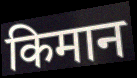
किमान